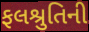
ફલશ્રુતિની